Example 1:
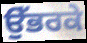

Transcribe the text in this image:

ਉੱਭਰਕੇ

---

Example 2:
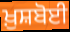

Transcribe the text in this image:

ਖ਼ੁਸ਼ਬੋਈ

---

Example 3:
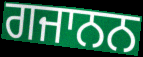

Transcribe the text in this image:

ਗਜਾਨਨ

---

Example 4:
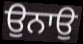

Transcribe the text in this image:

ਉਨਾਉ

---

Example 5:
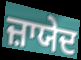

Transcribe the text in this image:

ਜ਼ਾਯੇਦ